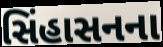
સિંહાસનના